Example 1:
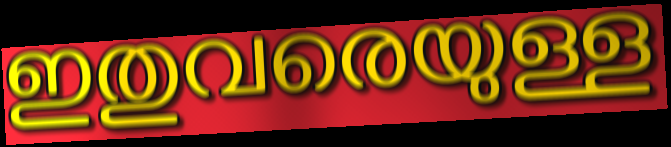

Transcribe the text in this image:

ഇതുവരെയുള്ള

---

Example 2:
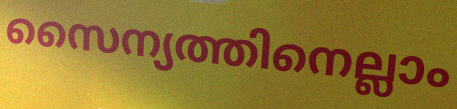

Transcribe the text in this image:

സൈന്യത്തിനെല്ലാം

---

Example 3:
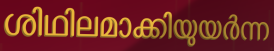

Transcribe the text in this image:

ശിഥിലമാക്കിയുയർന്ന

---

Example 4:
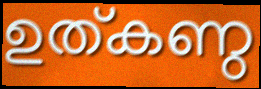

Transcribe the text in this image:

ഉത്കണ്ഠ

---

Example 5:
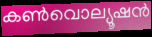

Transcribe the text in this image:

കൺവൊല്യൂഷൻ